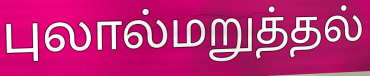
புலால்மறுத்தல்